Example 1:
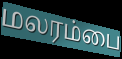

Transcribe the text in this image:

மலரம்பை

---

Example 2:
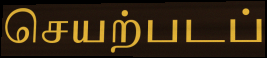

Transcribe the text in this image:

செயற்படப்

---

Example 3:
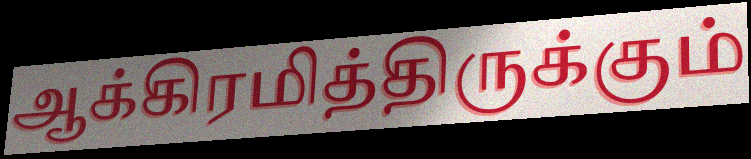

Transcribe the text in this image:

ஆக்கிரமித்திருக்கும்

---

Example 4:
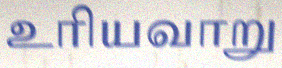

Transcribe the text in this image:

உரியவாறு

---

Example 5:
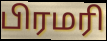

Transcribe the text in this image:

பிரமரி